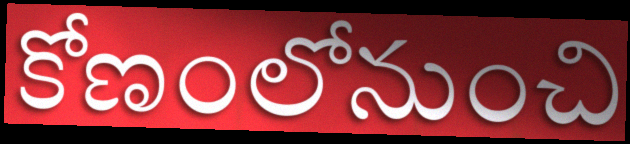
కోణంలోనుంచి